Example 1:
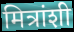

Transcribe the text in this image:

मित्रांशी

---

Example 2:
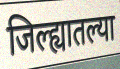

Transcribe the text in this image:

जिल्ह्यातल्या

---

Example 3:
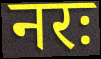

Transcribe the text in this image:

नरः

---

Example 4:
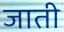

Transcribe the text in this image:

जाती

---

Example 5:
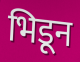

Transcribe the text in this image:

भिडून